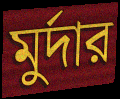
মুর্দার